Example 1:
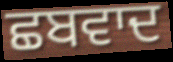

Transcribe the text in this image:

ਛਬਵਾਦ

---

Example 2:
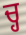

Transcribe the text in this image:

ਚ੍ਹ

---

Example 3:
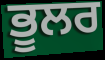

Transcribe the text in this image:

ਭੂਲਰ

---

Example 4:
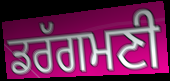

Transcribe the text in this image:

ਡਰੱਗਮਣੀ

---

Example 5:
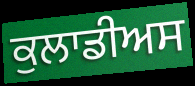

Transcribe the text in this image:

ਕੁਲਾਡੀਅਸ